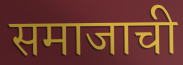
समाजाची